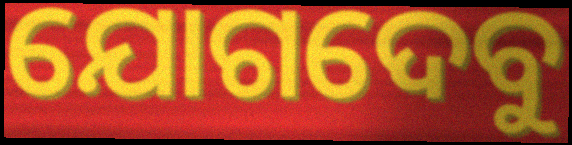
ଯୋଗଦେବୁ